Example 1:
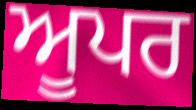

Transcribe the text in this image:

ਅੂਪਰ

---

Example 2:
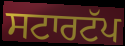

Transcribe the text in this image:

ਸਟਾਰਟੱਪ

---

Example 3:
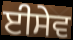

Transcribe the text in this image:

ਈਸੇਵ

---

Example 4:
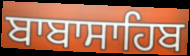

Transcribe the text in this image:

ਬਾਬਾਸਾਹਿਬ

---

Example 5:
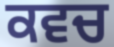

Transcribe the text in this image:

ਕਵਚ